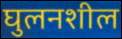
घुलनशील